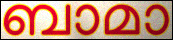
ബാമാ